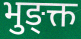
भुङ्क्त